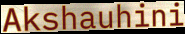
Akshauhini